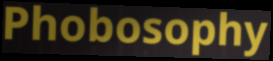
Phobosophy